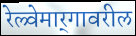
रेल्वेमार्गावरील